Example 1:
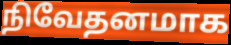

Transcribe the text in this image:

நிவேதனமாக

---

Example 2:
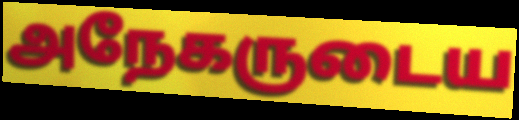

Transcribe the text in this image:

அநேகருடைய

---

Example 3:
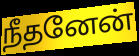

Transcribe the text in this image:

நீதனேன்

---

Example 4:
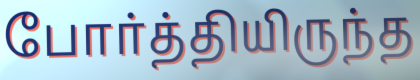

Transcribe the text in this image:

போர்த்தியிருந்த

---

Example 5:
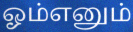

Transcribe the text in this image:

ஓம்எனும்